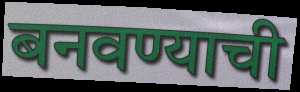
बनवण्याची